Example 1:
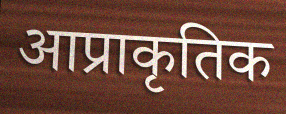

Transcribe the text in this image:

आप्राकृतिक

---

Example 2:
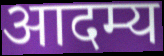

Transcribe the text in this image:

आदम्य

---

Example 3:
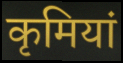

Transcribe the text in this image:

कृमियां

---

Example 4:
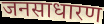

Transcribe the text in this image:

जनसाधारण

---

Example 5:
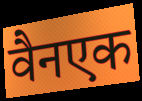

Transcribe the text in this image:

वैनएक